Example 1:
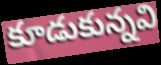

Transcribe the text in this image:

కూడుకున్నవి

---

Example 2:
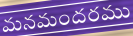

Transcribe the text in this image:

మనమందరము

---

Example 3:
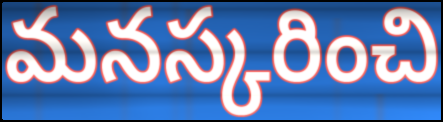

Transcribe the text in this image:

మనస్కరించి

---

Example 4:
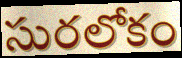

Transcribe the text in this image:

సురలోకం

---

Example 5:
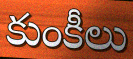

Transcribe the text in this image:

కుంకీలు